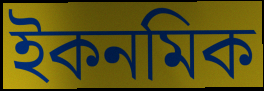
ইকনমিক